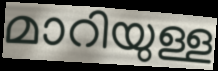
മാറിയുള്ള